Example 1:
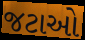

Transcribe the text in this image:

જટાઓ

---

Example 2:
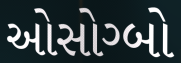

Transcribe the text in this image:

ઓસોગ્બો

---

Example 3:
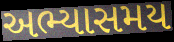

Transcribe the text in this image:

અભ્યાસમય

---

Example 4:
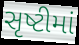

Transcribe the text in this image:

સૃષ્ટીમાં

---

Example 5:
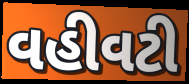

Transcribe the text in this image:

વહીવટી